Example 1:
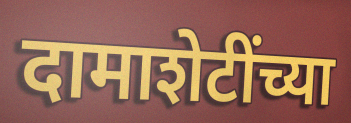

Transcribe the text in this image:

दामाशेटींच्या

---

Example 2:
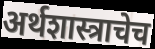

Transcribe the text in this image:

अर्थशास्त्राचेच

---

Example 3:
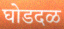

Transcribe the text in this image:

घोडदळ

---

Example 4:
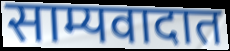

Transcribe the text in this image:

साम्यवादात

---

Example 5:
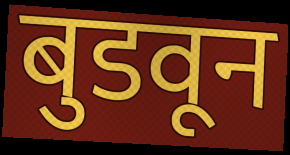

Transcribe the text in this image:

बुडवून